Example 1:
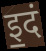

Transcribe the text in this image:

इ॒दं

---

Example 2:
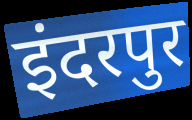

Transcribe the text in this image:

इंदरपुर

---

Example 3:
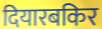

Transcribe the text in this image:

दियारबकिर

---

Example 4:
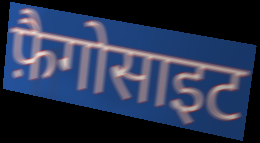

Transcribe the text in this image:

फ़ैगोसाइट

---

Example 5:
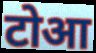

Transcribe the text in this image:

टोआ